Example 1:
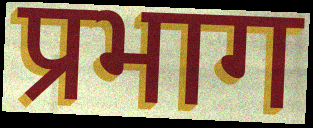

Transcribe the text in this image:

प्रभाग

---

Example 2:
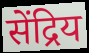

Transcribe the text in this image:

सेंद्रिय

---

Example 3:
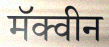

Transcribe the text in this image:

मॅक्वीन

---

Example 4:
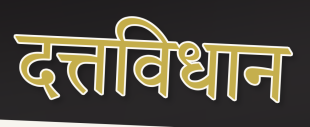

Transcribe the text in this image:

दत्तविधान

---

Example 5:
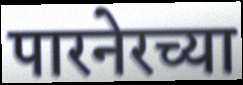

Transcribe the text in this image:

पारनेरच्या